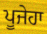
ਪੂਜੇਹਾ